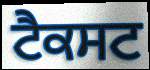
ਟੈਕਸਟ